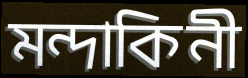
মন্দাকিনী